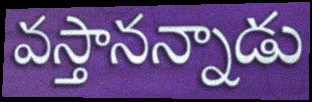
వస్తానన్నాడు